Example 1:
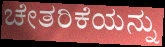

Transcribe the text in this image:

ಚೇತರಿಕೆಯನ್ನು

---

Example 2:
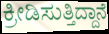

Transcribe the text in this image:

ಕ್ರೀಡಿಸುತ್ತಿದ್ದಾನೆ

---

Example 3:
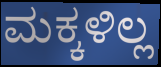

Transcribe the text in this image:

ಮಕ್ಕಳಿಲ್ಲ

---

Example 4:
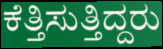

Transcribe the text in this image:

ಕೆತ್ತಿಸುತ್ತಿದ್ದರು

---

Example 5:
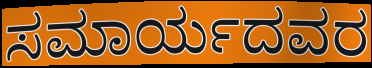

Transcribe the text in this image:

ಸಮಾರ್ಯದವರ